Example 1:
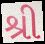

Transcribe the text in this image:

શ્રી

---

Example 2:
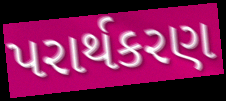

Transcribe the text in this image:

પરાર્થકરણ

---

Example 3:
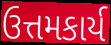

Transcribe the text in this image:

ઉત્તમકાર્ય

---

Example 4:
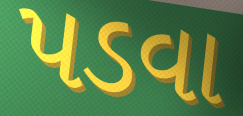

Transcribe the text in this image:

પડવા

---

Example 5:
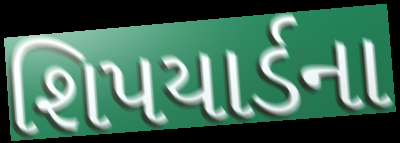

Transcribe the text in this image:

શિપયાર્ડના